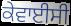
ਕੇਵਾਈਸੀ